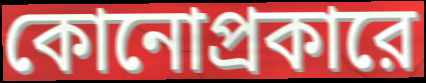
কোনোপ্রকারে